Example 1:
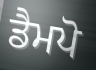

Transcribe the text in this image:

ਡੈਮਪੋ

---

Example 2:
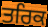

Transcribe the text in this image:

ਤਰਿਕ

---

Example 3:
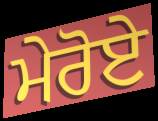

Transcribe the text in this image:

ਮੇਰੋਏ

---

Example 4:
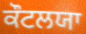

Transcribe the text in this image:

ਕੌਟਲਯਾ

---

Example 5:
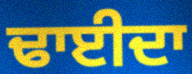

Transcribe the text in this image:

ਢਾਈਦਾ